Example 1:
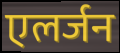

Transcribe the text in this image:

एलर्जन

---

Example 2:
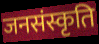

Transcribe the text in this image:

जनसंस्कृति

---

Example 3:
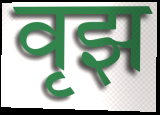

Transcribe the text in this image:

वृझ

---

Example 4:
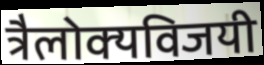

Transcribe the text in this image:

त्रैलोक्यविजयी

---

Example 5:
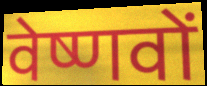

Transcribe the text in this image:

वेष्णवों